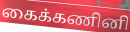
கைக்கணினி